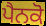
ਪੈਨਕੋ